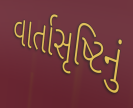
વાર્તાસૃષ્ટિનું